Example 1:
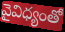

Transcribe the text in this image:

వైవిధ్యంతో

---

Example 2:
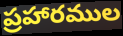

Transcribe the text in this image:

ప్రహారముల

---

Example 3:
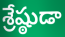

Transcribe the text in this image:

శ్రేష్ఠుడా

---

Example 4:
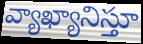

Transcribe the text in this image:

వ్యాఖ్యానిస్తూ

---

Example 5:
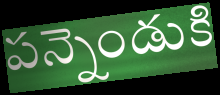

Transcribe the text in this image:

పన్నెండుకి